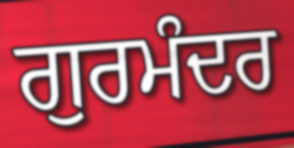
ਗੁਰਮੰਦਰ